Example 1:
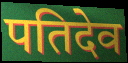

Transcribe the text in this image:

पतिदेव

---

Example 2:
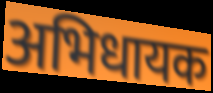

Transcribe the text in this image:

अभिधायक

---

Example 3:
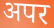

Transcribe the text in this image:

अपर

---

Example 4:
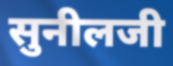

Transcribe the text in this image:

सुनीलजी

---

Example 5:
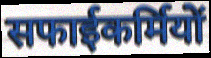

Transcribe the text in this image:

सफाईकर्मियों